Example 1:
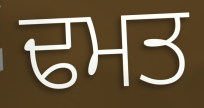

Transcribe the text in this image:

ਢਮਤ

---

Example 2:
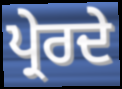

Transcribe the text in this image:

ਪ੍ਰੇਰਦੇ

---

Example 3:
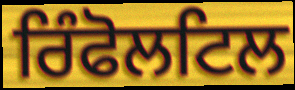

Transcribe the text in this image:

ਰਿੰਫੋਲਟਿਲ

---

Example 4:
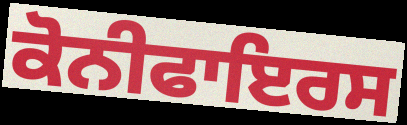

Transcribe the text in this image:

ਕੋਨੀਫਾਇਰਸ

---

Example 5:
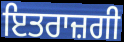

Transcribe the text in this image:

ਇਤਰਾਜ਼ਗੀ